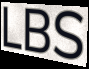
LBS